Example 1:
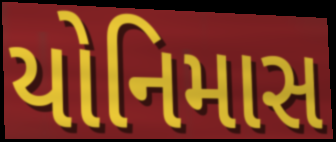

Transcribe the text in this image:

યોનિમાસ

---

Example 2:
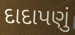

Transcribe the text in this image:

દાદાપણું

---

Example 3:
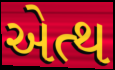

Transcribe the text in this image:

એત્થ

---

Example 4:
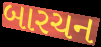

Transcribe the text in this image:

બારચન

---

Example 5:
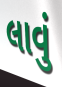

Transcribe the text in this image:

લાવું